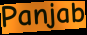
Panjab